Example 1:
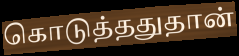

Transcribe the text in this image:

கொடுத்ததுதான்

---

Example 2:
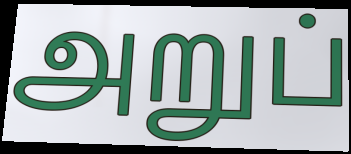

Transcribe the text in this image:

அறுப்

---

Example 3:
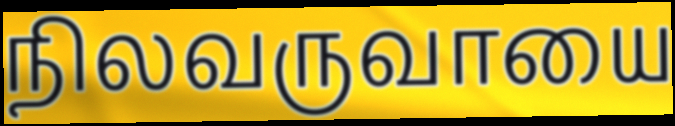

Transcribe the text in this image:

நிலவருவாயை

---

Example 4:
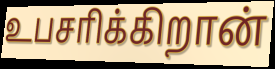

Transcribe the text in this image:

உபசரிக்கிறான்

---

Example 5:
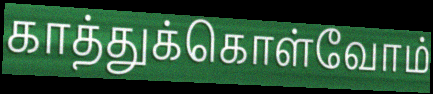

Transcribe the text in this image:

காத்துக்கொள்வோம்